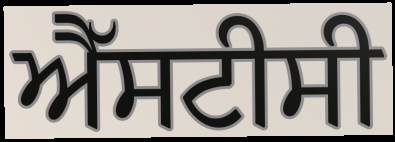
ਐੱਸਟੀਸੀ